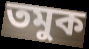
তমুক